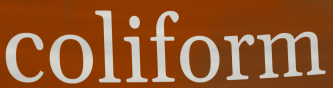
coliform